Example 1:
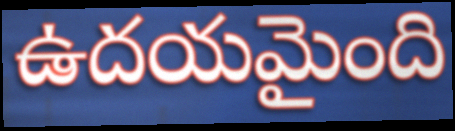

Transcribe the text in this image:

ఉదయమైంది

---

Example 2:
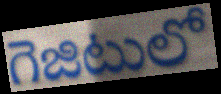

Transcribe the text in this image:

గెజిటులో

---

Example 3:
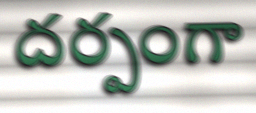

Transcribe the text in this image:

దర్పంగా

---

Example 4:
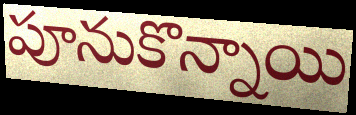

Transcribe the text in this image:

పూనుకొన్నాయి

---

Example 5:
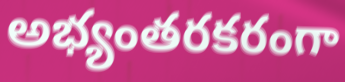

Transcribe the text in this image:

అభ్యంతరకరంగా